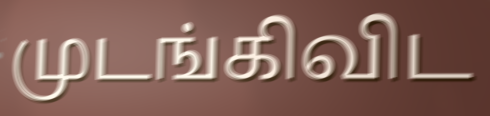
முடங்கிவிட